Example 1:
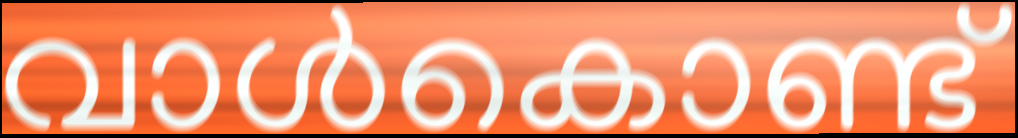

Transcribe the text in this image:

വാൾകൊണ്ട്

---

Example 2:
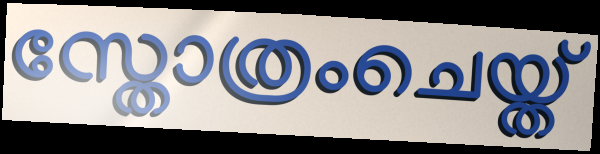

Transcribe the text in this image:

സ്തോത്രംചെയ്ത്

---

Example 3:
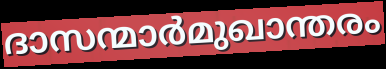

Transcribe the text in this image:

ദാസന്മാർമുഖാന്തരം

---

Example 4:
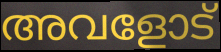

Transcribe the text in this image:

അവളോട്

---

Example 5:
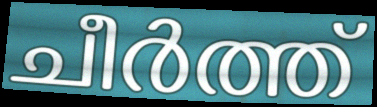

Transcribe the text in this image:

ചീർത്ത്